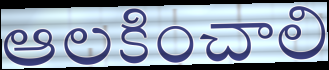
ఆలకించాలి